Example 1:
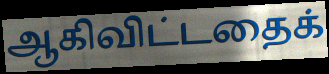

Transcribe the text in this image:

ஆகிவிட்டதைக்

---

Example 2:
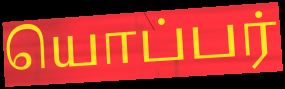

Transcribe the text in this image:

யொப்பர்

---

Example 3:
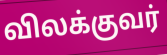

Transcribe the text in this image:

விலக்குவர்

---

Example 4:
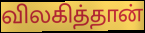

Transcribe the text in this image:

விலகித்தான்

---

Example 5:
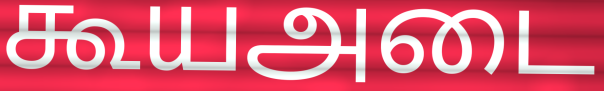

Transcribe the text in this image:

கூயஅடை